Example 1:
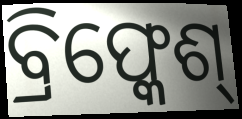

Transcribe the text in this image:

ବ୍ରିଫ୍କେଶ୍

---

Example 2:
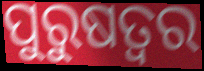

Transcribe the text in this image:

ପୁରୁଷତ୍ଵର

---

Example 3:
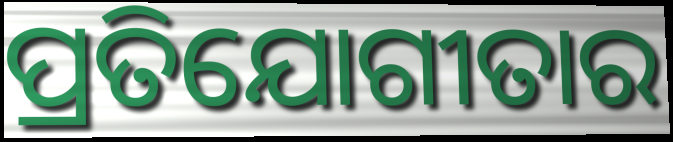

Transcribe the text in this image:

ପ୍ରତିଯୋଗୀତାର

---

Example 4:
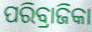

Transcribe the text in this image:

ପରିବ୍ରାଜିକା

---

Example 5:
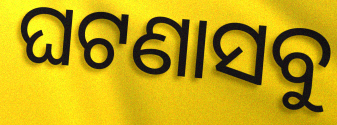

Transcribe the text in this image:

ଘଟଣାସବୁ